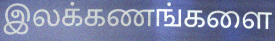
இலக்கணங்களை